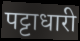
पट्टाधारी